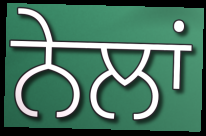
ਨੇਲਾਂ